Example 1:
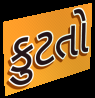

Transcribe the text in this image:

કુટતો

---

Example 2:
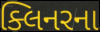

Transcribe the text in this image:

ક્લિનરના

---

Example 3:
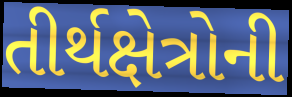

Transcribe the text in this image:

તીર્થક્ષેત્રોની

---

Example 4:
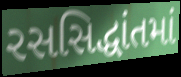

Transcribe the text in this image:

રસસિદ્ધાંતમાં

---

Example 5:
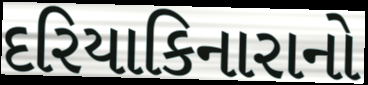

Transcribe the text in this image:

દરિયાકિનારાનો